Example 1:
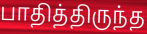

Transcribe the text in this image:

பாதித்திருந்த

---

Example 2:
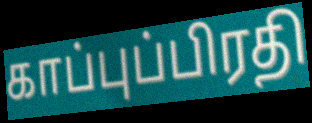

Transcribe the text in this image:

காப்புப்பிரதி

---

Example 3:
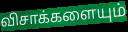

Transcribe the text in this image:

விசாக்களையும்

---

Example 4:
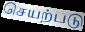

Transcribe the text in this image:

செயற்படு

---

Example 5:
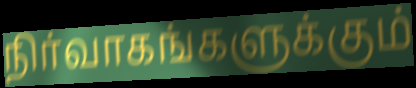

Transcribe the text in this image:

நிர்வாகங்களுக்கும்